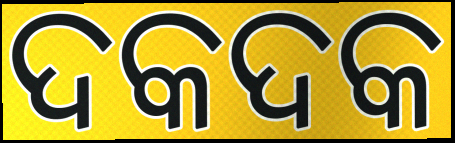
ଦକଦକ